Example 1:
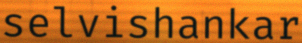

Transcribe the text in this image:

selvishankar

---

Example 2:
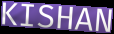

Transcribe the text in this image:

KISHAN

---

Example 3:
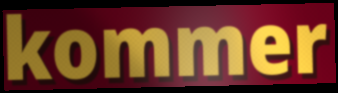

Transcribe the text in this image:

kommer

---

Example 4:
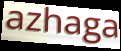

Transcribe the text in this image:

azhaga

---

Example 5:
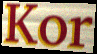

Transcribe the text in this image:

Kor